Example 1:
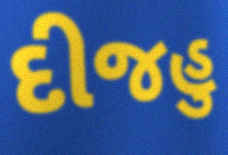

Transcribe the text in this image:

દીજહુ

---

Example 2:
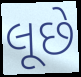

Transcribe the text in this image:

લૂછે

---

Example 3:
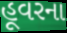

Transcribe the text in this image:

હૂવરના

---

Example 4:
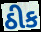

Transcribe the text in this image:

ઠીક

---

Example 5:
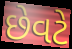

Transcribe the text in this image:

છેવટે